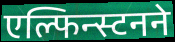
एल्फिन्स्टनने